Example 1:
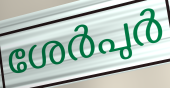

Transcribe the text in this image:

ശേർപുർ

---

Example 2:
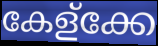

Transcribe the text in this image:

കേള്ക്കേ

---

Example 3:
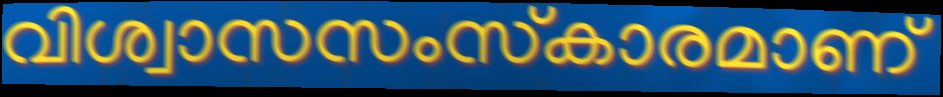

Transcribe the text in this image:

വിശ്വാസസംസ്‌കാരമാണ്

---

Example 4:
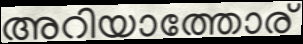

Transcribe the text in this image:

അറിയാത്തോര്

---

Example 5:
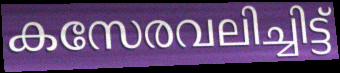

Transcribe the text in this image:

കസേരവലിച്ചിട്ട്